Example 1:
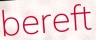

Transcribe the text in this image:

bereft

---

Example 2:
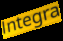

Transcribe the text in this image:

Integra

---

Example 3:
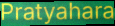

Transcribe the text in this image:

Pratyahara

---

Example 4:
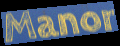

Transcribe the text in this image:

Manor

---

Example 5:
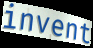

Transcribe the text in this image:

invent